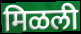
मिळली